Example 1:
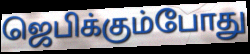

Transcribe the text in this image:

ஜெபிக்கும்போது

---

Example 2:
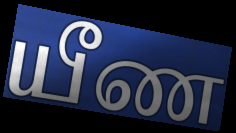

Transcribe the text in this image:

யீண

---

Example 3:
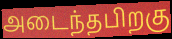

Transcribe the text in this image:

அடைந்தபிறகு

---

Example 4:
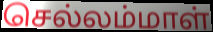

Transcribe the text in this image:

செல்லம்மாள்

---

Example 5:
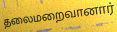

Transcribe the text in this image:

தலைமறைவானார்